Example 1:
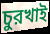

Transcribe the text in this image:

চুরখাই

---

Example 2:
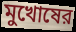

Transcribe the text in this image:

মুখোষের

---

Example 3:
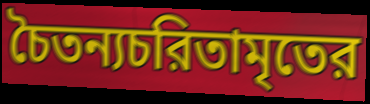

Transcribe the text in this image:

চৈতন্যচরিতামৃতের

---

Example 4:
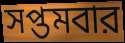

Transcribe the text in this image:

সপ্তমবার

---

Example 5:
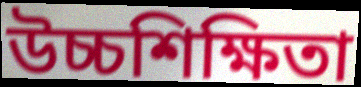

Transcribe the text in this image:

উচ্চশিক্ষিতা